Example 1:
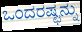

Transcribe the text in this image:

ಒಂದರಷ್ಟನ್ನು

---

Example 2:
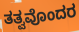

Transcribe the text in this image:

ತತ್ವವೊಂದರ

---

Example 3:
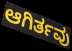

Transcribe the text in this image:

ಆಗಿರ್ತವು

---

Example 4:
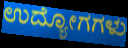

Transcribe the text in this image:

ಉದ್ಯೋಗಗಳು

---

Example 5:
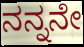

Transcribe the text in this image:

ನನ್ನನೇ